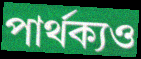
পার্থক্যও